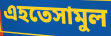
এহতেসামুল